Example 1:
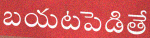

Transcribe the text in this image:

బయటపెడితే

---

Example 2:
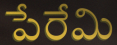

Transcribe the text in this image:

పేరేమి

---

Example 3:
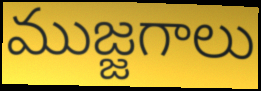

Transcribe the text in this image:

ముజ్జగాలు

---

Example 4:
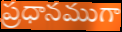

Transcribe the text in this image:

ప్రధానముగా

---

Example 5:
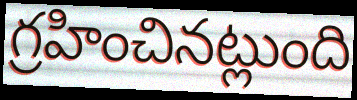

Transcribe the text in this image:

గ్రహించినట్లుంది